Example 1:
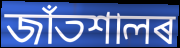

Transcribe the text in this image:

জাঁতশালৰ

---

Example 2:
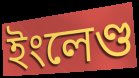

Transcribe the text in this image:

ইংলেণ্ড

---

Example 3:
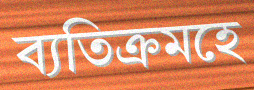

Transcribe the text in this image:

ব্যতিক্ৰমহে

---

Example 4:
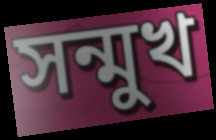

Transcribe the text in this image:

সন্মুখ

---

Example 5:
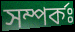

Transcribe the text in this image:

সম্পৰ্কঃ